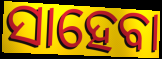
ସାହେବା